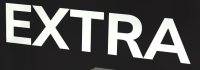
EXTRA